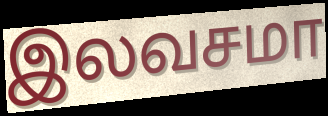
இலவசமா